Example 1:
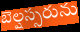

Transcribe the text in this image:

బెల్షస్సరును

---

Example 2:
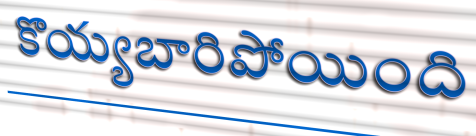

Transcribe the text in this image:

కొయ్యబారిపోయింది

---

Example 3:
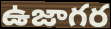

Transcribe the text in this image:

ఉజాగర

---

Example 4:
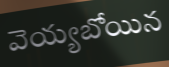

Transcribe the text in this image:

వెయ్యబోయిన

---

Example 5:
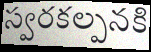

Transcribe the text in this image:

స్వరకల్పనకి